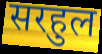
सरहुल